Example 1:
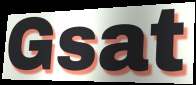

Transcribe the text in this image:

Gsat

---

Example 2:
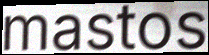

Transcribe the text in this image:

mastos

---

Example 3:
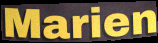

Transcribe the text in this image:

Marien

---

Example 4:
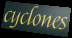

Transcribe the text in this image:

cyclones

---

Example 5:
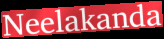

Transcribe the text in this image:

Neelakanda